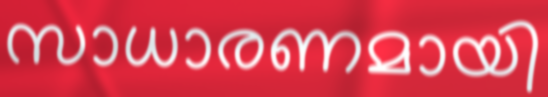
സാധാരണമായി